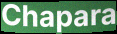
Chapara